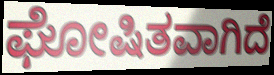
ಘೋಷಿತವಾಗಿದೆ